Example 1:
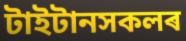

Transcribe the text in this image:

টাইটানসকলৰ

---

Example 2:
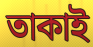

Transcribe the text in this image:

তাকাই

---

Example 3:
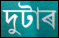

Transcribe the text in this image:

দুটাৰ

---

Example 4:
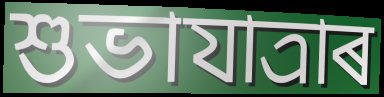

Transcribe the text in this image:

শুভাযাত্ৰাৰ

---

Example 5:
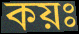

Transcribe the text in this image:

কয়ঃ